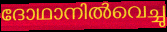
ദോഥാനിൽവെച്ചു